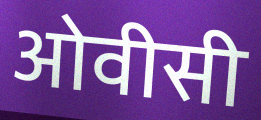
ओवीसी